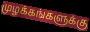
முழக்கங்களுக்கு